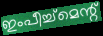
ഇംപീച്ച്മെന്റ്